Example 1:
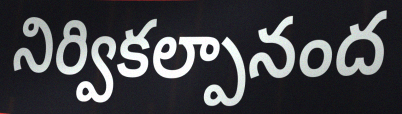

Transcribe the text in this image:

నిర్వికల్పానంద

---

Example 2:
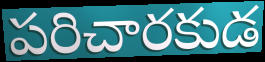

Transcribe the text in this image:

పరిచారకుడ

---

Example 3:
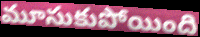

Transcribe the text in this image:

మూసుకుపోయింది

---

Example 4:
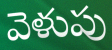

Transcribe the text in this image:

వెళుపు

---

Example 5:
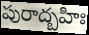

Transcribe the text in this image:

పురాద్బహిః